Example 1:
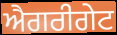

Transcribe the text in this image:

ਐਗਰੀਗੇਟ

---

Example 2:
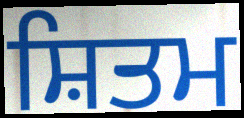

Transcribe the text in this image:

ਸ਼ਿਤਮ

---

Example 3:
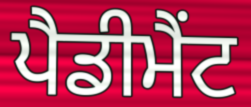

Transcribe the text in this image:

ਪੈਡੀਮੈਂਟ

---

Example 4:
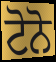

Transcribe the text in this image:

ਟੋਨੋ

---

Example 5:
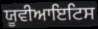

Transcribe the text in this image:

ਯੂਵੀਆਇਟਿਸ